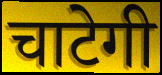
चाटेगी